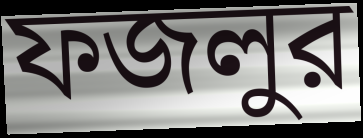
ফজলুর